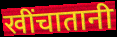
खींचातानी